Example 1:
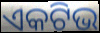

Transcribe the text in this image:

ଏକଟିଭ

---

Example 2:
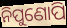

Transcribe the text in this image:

ନିପୁଣୋପି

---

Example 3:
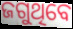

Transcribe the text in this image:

ଜଗୁଥିବେ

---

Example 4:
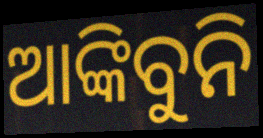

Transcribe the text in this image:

ଆଙ୍କିବୁନି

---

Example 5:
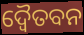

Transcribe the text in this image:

ଦ୍ବୈତବନ